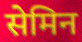
सेमिन